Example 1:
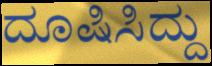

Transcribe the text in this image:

ದೂಷಿಸಿದ್ದು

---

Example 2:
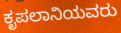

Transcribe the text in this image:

ಕೃಪಲಾನಿಯವರು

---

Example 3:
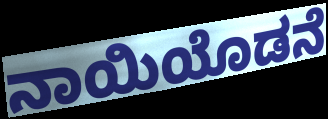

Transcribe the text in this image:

ನಾಯಿಯೊಡನೆ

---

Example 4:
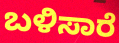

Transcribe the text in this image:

ಬಳಿಸಾರೆ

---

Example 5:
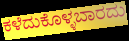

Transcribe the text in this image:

ಕಳೆದುಕೊಳ್ಳಬಾರದು